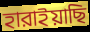
হারাইয়াছি